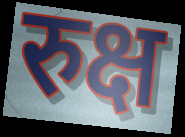
रुक्ष